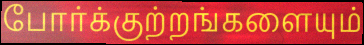
போர்க்குற்றங்களையும்